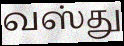
வஸ்து